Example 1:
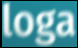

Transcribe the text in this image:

loga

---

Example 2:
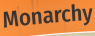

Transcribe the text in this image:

Monarchy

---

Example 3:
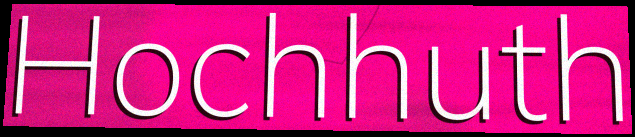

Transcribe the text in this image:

Hochhuth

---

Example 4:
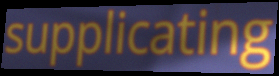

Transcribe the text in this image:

supplicating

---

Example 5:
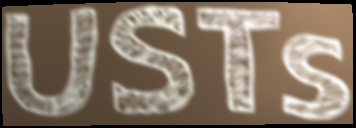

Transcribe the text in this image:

USTs